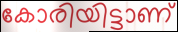
കോരിയിട്ടാണ്